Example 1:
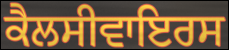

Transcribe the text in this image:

ਕੈਲਸੀਵਾਇਰਸ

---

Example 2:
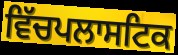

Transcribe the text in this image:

ਵਿੱਚਪਲਾਸਟਿਕ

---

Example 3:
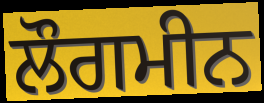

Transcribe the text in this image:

ਲੌਗਮੀਨ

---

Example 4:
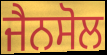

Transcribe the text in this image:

ਜੈਨਸੋਲ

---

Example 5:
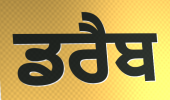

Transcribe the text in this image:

ਡਰੈਬ